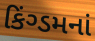
કિંગ્ડમનાં